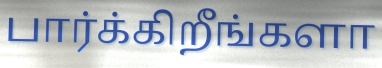
பார்க்கிறீங்களா